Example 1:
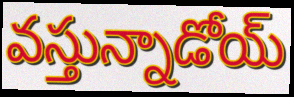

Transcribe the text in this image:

వస్తున్నాడోయ్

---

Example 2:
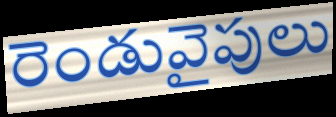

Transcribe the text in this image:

రెండువైపులు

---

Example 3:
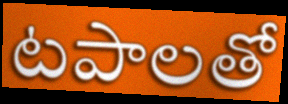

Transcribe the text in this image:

టపాలతో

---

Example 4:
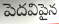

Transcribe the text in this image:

పెదవిపైన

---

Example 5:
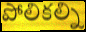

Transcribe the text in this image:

పోలికల్ని